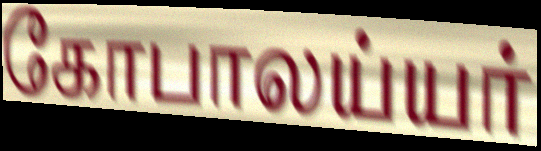
கோபாலய்யர்